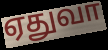
ஏதுவா